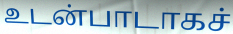
உடன்பாடாகச்